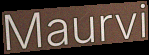
Maurvi